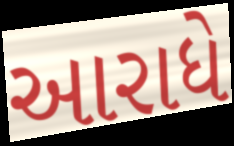
આરાધે